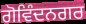
ਗੋਵਿੰਦਨਗਰ